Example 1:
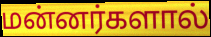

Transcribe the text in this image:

மன்னர்களால்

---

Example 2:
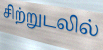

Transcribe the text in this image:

சிற்றுடலில்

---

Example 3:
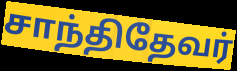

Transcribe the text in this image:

சாந்திதேவர்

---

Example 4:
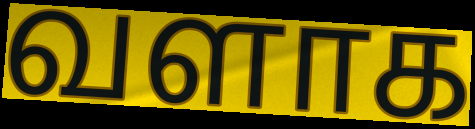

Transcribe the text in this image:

வளாக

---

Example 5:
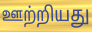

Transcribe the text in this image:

ஊற்றியது